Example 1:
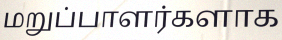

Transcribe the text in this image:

மறுப்பாளர்களாக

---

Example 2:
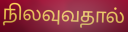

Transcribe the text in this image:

நிலவுவதால்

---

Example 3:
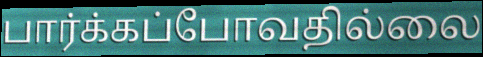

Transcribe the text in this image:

பார்க்கப்போவதில்லை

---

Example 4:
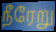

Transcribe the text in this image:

நீரேறு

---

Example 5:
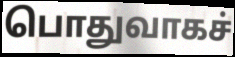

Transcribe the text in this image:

பொதுவாகச்